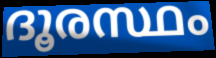
ദൂരസ്ഥം